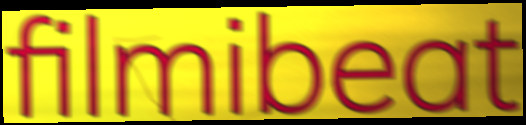
filmibeat